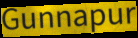
Gunnapur